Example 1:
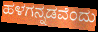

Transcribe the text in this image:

ಹಳಗನ್ನಡವೆಂದು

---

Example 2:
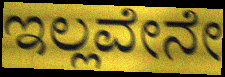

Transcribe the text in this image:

ಇಲ್ಲವೇನೇ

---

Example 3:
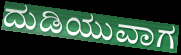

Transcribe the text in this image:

ದುಡಿಯುವಾಗ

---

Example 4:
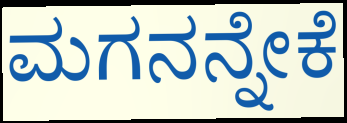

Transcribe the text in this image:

ಮಗನನ್ನೇಕೆ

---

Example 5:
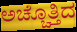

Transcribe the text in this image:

ಅಚ್ಚೊತ್ತಿದ